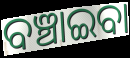
ବଞ୍ଚାଇବା